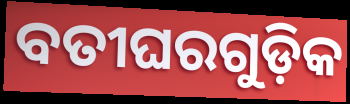
ବତୀଘରଗୁଡ଼ିକ